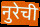
नुरेची